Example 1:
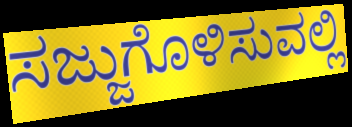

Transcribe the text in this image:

ಸಜ್ಜುಗೊಳಿಸುವಲ್ಲಿ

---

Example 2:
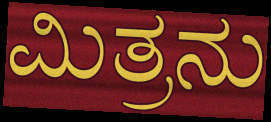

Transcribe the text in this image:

ಮಿತ್ರನು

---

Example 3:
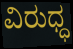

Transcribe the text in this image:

ವಿರುಧ್ಧ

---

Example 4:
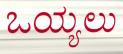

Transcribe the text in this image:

ಒಯ್ಯಲು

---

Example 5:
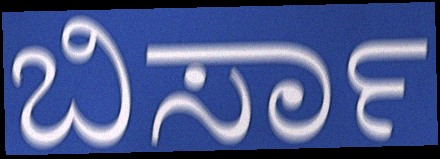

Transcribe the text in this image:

ಬಿರ್ಸಾ